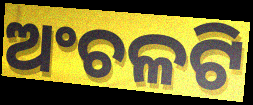
ଅଂଚଳଟି